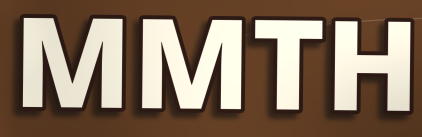
MMTH